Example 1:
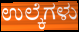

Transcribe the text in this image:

ಉಲ್ಕೆಗಳು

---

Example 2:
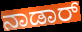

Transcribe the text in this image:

ನಾಡಾರ್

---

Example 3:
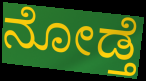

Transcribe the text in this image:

ನೋಡ್ತೆ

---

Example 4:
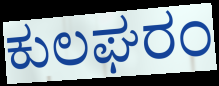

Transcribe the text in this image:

ಕುಲಘರಂ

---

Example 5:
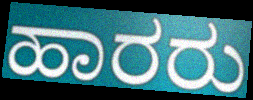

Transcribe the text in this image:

ಹಾರರು